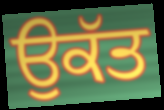
ਉਕੱਤ